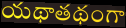
యథాతథంగా